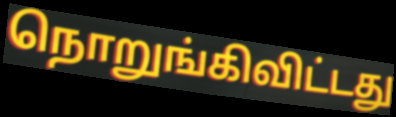
நொறுங்கிவிட்டது